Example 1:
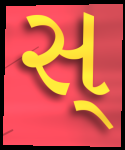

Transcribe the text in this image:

સ્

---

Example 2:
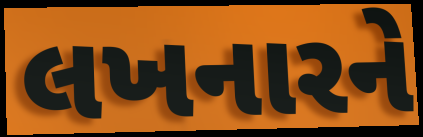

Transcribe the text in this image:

લખનારને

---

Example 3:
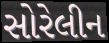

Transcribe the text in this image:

સોરેલીન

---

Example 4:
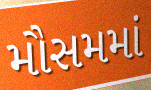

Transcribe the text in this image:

મૌસમમાં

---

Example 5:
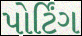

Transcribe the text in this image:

પોર્ટિંગ